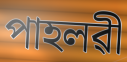
পাহলৱী